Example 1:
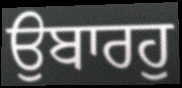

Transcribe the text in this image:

ਉਬਾਰਹੁ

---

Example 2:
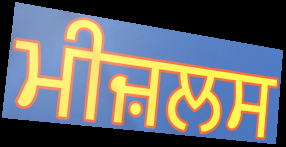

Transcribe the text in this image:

ਮੀਜ਼ਲਸ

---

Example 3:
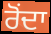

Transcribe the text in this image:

ਰੋਂਦਾ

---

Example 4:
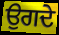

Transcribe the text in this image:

ਉਗਦੇ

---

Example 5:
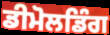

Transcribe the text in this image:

ਡੀਮੋਲਡਿੰਗ